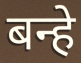
बन्हे